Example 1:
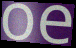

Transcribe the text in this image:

oe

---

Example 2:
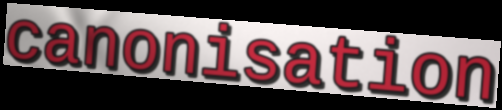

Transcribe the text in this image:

canonisation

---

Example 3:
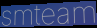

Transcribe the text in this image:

smteam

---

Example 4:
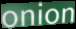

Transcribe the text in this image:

onion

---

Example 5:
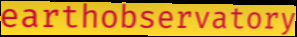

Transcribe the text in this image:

earthobservatory